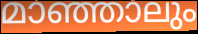
മാഞ്ഞാലും